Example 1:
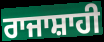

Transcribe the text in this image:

ਰਾਜਾਸ਼ਾਹੀ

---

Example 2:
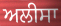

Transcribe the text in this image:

ਅਲੀਸਾ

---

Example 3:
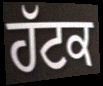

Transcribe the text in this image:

ਹੱਟਕ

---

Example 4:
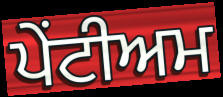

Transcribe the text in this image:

ਪੇਂਟੀਅਮ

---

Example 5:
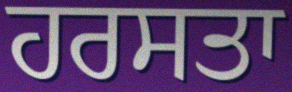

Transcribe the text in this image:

ਹਰਸਤਾ